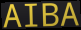
AIBA